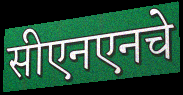
सीएनएनचे